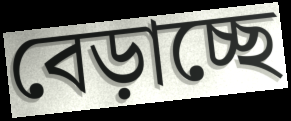
বেড়াচ্ছে